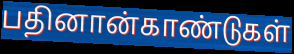
பதினான்காண்டுகள்